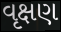
વૃક્ષણ